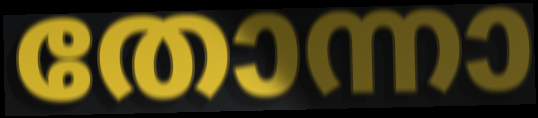
തോന്നാ